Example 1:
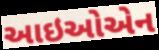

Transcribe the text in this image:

આઇઓએન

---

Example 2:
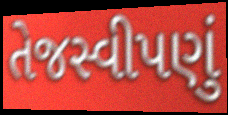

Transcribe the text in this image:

તેજસ્વીપણું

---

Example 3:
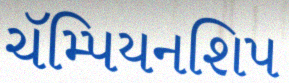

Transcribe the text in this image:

ચૅમ્પિયનશિપ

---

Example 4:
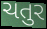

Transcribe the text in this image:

ચતુર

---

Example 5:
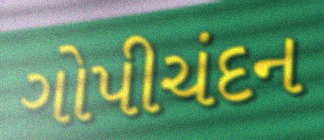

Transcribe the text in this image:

ગોપીચંદન